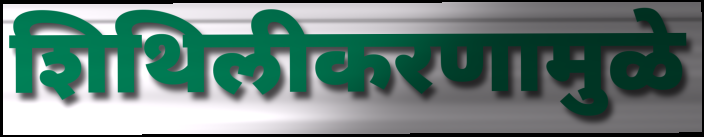
शिथिलीकरणामुळे